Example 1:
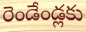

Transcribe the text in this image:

రెండేండ్లకు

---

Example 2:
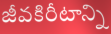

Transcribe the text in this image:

జీవకిరీటాన్ని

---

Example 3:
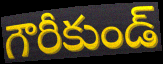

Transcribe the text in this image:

గౌరీకుండ్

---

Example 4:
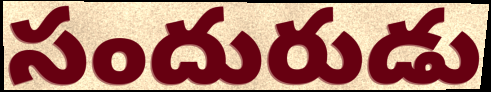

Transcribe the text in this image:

సందురుడు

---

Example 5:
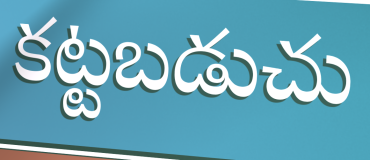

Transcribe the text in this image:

కట్టబడుచు